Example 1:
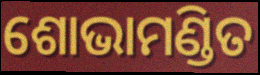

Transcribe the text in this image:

ଶୋଭାମଣ୍ଡିତ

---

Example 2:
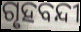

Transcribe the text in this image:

ଗୃହବନ୍ଦୀ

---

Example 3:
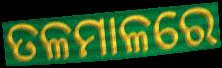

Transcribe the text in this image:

ତଳମାଳରେ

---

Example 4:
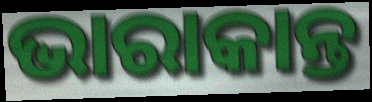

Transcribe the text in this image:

ଭାରାକାନ୍ତ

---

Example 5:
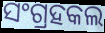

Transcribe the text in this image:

ସଂଗ୍ରହକଲ